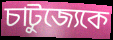
চাটুজ্যেকে